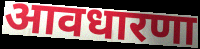
आवधारणा